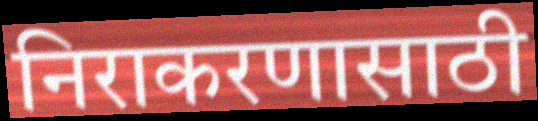
निराकरणासाठी